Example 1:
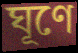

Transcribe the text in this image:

ঘূণে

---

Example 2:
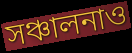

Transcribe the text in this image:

সঞ্চালনাও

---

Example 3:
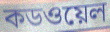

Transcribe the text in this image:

কডওয়েল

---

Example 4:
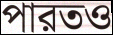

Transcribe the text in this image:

পারতও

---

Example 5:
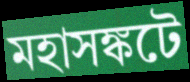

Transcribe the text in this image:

মহাসঙ্কটে